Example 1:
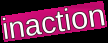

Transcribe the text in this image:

inaction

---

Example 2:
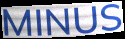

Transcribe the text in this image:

MINUS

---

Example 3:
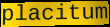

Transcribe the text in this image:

placitum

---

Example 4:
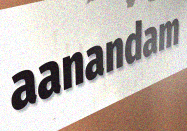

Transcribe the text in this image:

aanandam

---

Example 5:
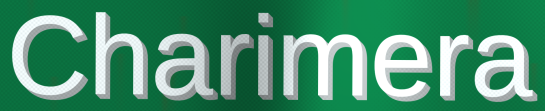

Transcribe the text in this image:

Charimera